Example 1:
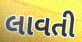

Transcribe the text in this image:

લાવતી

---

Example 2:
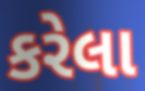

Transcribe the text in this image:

કરેલા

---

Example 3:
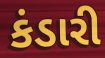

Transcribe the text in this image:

કંડારી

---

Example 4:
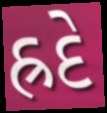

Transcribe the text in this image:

હ્રદે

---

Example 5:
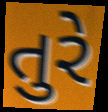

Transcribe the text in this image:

તુરે